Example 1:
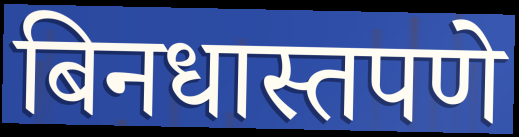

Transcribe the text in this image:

बिनधास्तपणे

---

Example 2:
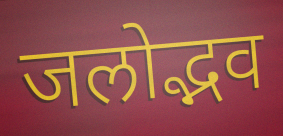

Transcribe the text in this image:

जलोद्भव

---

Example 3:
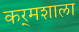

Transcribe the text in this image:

कर्मशाला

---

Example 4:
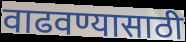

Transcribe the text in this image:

वाढवण्यासाठी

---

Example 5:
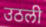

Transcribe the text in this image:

उठली